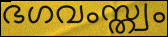
ഭഗവംസ്ത്വം